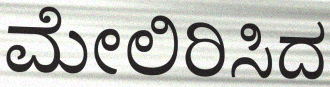
ಮೇಲಿರಿಸಿದ